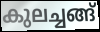
കുലച്ചങ്ങ്